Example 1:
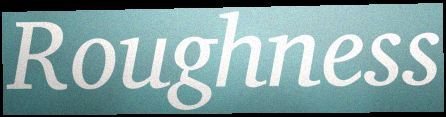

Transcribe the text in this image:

Roughness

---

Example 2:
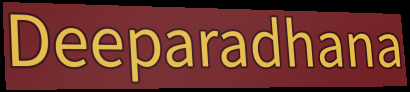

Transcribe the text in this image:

Deeparadhana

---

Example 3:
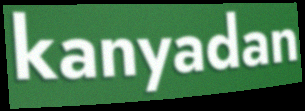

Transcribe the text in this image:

kanyadan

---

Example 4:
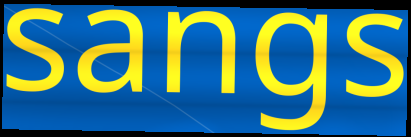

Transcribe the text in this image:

sangs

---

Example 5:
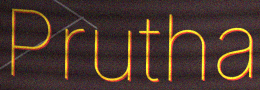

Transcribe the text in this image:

Prutha